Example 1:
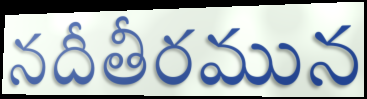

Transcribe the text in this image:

నదీతీరమున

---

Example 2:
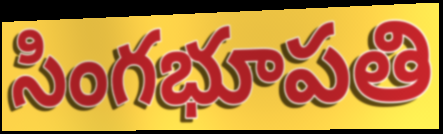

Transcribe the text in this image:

సింగభూపతి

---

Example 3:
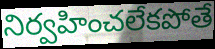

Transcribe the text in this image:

నిర్వహించలేకపోతే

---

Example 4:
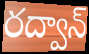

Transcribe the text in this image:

రద్వాన్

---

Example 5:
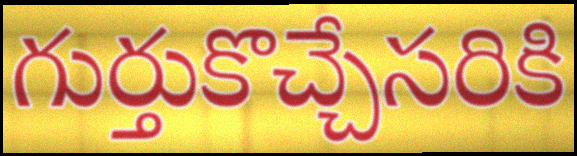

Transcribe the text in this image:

గుర్తుకొచ్చేసరికి